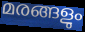
മരങ്ങളും